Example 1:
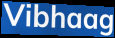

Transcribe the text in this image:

Vibhaag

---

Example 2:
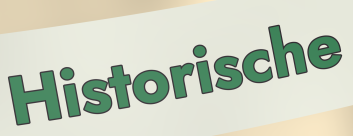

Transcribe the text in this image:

Historische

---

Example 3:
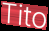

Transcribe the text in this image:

Tito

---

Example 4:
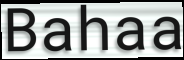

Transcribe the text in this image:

Bahaa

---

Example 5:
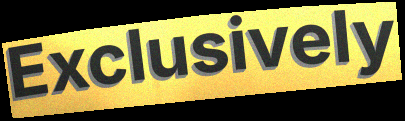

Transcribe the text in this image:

Exclusively